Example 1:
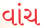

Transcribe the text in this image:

વાંચ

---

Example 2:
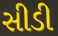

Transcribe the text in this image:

સીડી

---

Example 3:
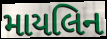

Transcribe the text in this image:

માયલિન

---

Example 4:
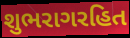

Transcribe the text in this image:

શુભરાગરહિત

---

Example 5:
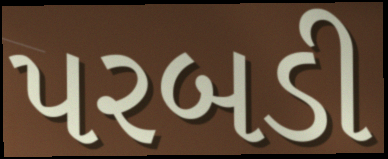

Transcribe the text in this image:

પરબડી